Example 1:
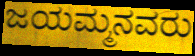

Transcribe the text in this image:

ಜಯಮ್ಮನವರು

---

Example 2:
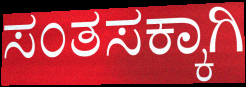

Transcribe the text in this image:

ಸಂತಸಕ್ಕಾಗಿ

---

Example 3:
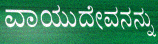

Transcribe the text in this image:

ವಾಯುದೇವನನ್ನು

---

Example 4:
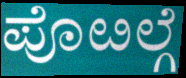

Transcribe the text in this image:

ಪೊೞಲ್ಗೆ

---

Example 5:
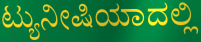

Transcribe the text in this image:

ಟ್ಯುನೀಷಿಯಾದಲ್ಲಿ